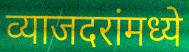
व्याजदरांमध्ये